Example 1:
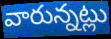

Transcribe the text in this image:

వారున్నట్లు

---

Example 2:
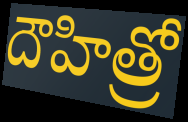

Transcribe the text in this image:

దౌహిత్రో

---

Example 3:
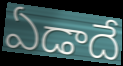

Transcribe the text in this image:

ఏడాదే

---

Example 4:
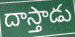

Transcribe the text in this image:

దాస్తాడు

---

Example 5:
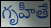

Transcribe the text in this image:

గృహీతే